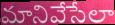
మానివేసేలా